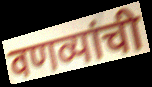
वणव्यांची